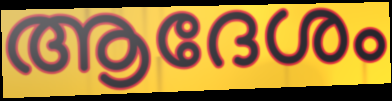
ആദേശം